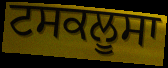
ਟਸਕਲੂਸਾ